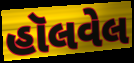
હૉલવેલ